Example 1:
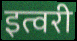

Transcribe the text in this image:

इत्वरी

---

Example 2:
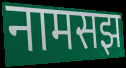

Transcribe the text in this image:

नामसझ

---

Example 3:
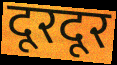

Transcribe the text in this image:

दूरदूर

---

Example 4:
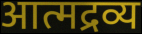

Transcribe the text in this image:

आत्मद्रव्य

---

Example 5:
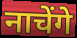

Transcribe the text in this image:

नाचेंगे